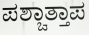
ಪಶ್ಚಾತ್ತಾಪ